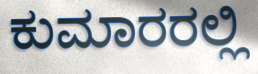
ಕುಮಾರರಲ್ಲಿ